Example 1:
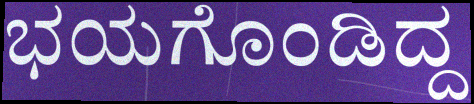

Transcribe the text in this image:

ಭಯಗೊಂಡಿದ್ದ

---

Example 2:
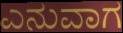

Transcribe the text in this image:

ಎನುವಾಗ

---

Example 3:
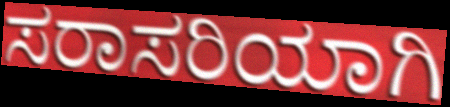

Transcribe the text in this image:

ಸರಾಸರಿಯಾಗಿ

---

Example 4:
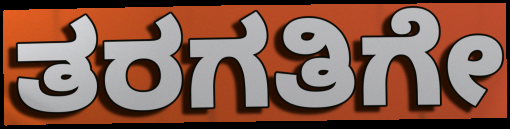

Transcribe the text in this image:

ತರಗತಿಗೇ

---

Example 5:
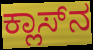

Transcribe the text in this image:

ಕ್ಲಾಸ್‌ನ